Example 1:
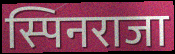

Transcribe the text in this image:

स्पिनराजा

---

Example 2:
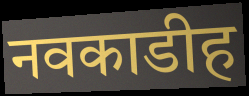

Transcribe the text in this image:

नवकाडीह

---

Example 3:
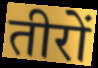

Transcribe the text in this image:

तीरों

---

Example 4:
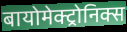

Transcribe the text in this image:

बायोमेक्ट्रोनिक्स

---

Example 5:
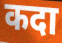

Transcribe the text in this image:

कदा